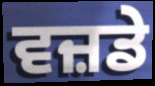
ਵਜ਼ਡੇ